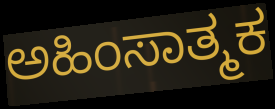
ಅಹಿಂಸಾತ್ಮಕ